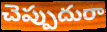
చెప్పుదురా